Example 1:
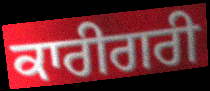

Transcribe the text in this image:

ਕਾਰੀਗਰੀ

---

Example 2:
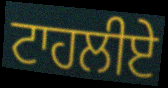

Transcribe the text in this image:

ਟਾਹਲੀਏ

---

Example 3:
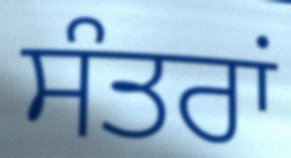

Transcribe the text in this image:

ਸੰਤਰਾਂ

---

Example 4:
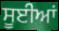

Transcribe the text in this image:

ਸੂਈਆਂ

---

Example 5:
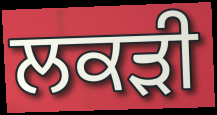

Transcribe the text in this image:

ਲਕੜੀ